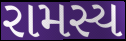
રામસ્ય